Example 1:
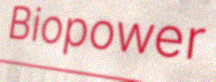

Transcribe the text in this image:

Biopower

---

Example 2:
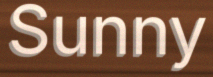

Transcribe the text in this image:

Sunny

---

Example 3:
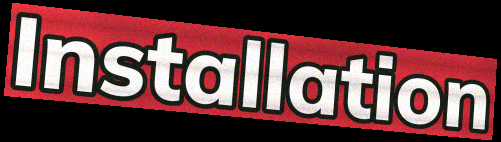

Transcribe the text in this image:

Installation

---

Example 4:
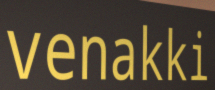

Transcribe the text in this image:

venakki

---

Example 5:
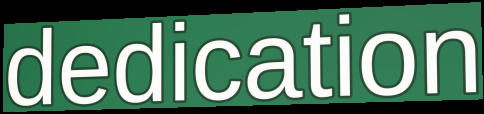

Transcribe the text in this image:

dedication